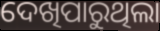
ଦେଖିପାରୁଥିଲା